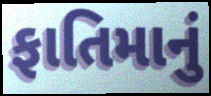
ફાતિમાનું